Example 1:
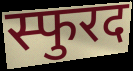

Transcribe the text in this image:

स्फुरद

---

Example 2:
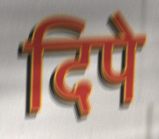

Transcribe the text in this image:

दिपे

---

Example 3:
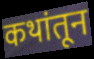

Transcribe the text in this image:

कथांतून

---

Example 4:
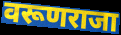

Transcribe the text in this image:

वरूणराजा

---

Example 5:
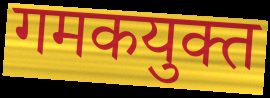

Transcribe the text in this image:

गमकयुक्त